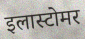
इलास्टोमर